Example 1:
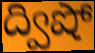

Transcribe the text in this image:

ద్విషో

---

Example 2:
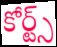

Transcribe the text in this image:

కోర్ట్స్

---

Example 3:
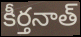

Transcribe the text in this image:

కీర్తనాత్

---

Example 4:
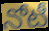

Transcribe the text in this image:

నోటీ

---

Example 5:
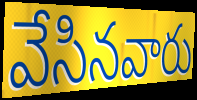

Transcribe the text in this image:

వేసినవారు